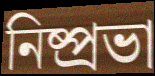
নিষ্প্রভা